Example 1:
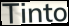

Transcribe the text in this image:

Tinto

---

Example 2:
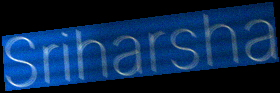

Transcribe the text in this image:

Sriharsha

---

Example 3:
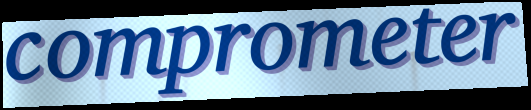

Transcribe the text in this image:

comprometer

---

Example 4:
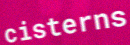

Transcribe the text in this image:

cisterns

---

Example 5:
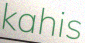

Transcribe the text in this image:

kahis